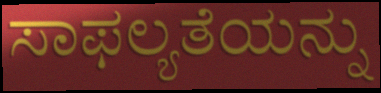
ಸಾಫಲ್ಯತೆಯನ್ನು